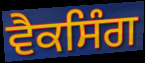
ਵੈਕਸਿੰਗ